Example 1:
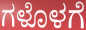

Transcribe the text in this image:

ಗಳೊಳಗೆ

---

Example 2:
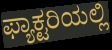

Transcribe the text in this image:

ಫ್ಯಾಕ್ಟರಿಯಲ್ಲಿ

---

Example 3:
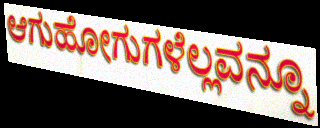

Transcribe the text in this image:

ಆಗುಹೋಗುಗಳೆಲ್ಲವನ್ನೂ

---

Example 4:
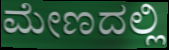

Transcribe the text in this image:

ಮೇಣದಲ್ಲಿ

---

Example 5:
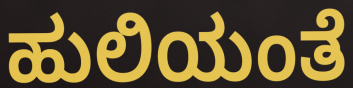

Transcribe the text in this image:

ಹುಲಿಯಂತೆ